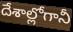
దేశాల్లోగానీ